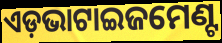
ଏଡ଼ଭାଟାଇଜମେଣ୍ଟ